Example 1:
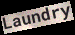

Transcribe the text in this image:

Laundry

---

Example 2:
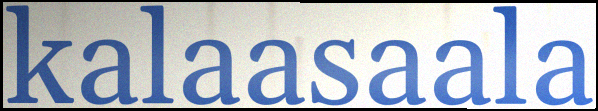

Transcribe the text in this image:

kalaasaala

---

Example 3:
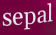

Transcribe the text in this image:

sepal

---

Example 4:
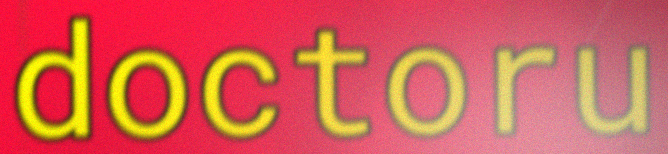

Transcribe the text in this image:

doctoru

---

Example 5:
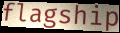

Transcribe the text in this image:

flagship